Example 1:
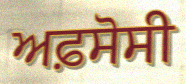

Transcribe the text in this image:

ਅਫ਼ਸੋਸੀ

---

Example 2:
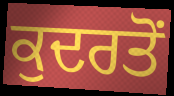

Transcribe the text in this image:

ਕੁਦਰਤੋਂ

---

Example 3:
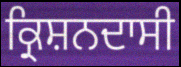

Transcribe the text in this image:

ਕ੍ਰਿਸ਼ਨਦਾਸੀ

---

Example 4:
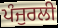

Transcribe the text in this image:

ਪੰਜੁਰਲੀ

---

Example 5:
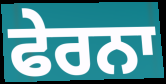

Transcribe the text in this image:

ਫੇਰਨਾ